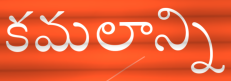
కమలాన్ని